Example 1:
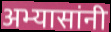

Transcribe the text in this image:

अभ्यासांनी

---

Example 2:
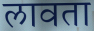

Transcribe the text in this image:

लावता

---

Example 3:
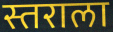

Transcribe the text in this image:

स्तराला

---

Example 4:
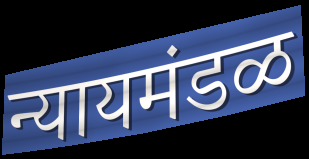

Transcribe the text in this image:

न्यायमंडळ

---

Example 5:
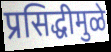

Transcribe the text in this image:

प्रसिद्धीमुळे